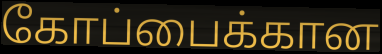
கோப்பைக்கான